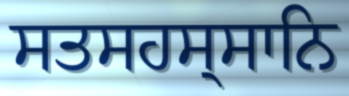
ਸਤਸਹਸ੍ਸਾਨਿ